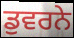
ਡੁਵਰਨੇ